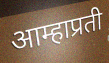
आम्हाप्रती